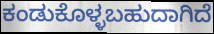
ಕಂಡುಕೊಳ್ಳಬಹುದಾಗಿದೆ